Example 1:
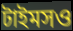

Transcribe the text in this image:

টাইমসও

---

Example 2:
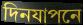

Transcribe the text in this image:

দিনযাপনে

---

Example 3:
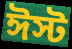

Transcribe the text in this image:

ঈস্ট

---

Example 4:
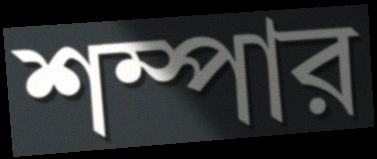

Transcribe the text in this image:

শম্পার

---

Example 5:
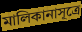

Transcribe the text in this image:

মালিকানাসূত্রে